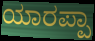
ಯಾರಪ್ಪಾ